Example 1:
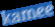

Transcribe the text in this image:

kamee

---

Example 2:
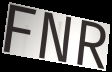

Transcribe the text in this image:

FNR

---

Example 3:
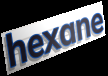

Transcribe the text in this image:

hexane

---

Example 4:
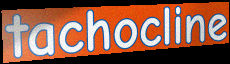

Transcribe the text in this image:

tachocline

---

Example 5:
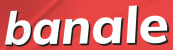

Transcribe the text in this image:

banale